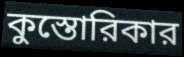
কুস্তোরিকার